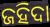
ଜହିଦା